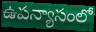
ఉపన్యాసంలో